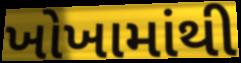
ખોખામાંથી